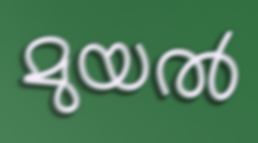
മുയൽ